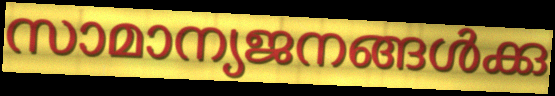
സാമാന്യജനങ്ങൾക്കു